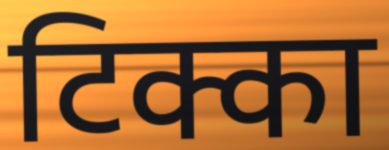
टिक्का